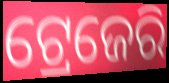
ଟ୍ରେଜେରି